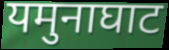
यमुनाघाट